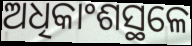
ଅଧିକାଂଶସ୍ଥଳେ